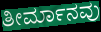
ತೀರ್ಮಾನವು